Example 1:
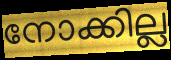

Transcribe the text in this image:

നോക്കില്ല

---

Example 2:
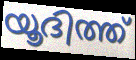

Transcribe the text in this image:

യൂദിത്ത്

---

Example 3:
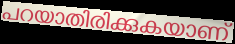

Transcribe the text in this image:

പറയാതിരിക്കുകയാണ്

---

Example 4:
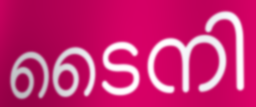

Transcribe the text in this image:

ടൈനി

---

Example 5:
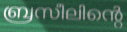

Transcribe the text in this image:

ബ്രസീലിന്റെ